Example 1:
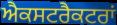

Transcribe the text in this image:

ਐਕਸਟਰੈਕਟਰਾਂ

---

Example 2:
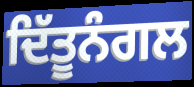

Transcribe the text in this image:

ਦਿੱਤੂਨੰਗਲ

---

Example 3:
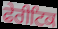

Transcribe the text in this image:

ਫੇਰੀਟਿਕ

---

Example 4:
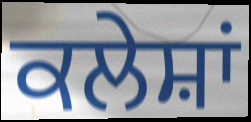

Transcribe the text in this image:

ਕਲੇਸ਼ਾਂ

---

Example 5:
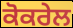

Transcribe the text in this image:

ਕੋਕਰੇਲ